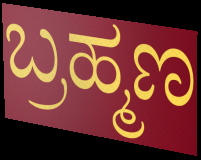
ಬ್ರಹ್ಮಣ